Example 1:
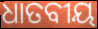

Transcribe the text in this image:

ଧାତବୀୟ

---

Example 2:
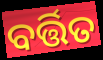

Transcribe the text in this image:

ବର୍ତ୍ତିତ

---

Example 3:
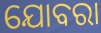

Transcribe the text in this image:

ଯୋବରା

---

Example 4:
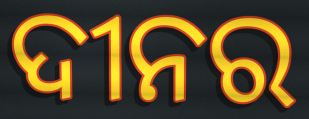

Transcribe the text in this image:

ଦୀନର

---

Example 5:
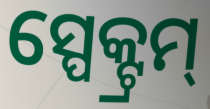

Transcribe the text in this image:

ସ୍ପେକ୍ଟ୍ରମ୍